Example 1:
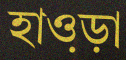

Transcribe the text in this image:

হাও়ড়া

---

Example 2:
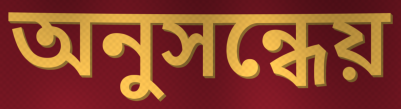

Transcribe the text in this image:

অনুসন্ধেয়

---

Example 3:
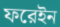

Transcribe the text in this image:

ফরেইন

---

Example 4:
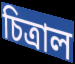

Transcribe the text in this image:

চিত্রাল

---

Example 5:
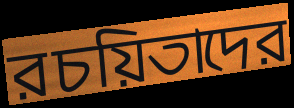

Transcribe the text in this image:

রচয়িতাদের